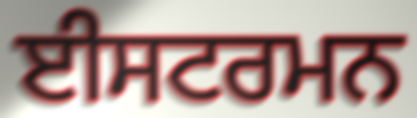
ਈਸਟਰਮਨ